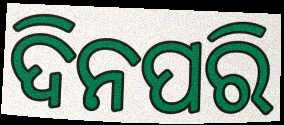
ଦିନପରି